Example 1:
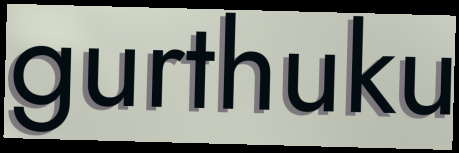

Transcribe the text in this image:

gurthuku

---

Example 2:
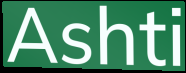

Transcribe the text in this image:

Ashti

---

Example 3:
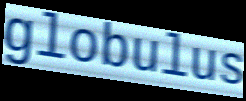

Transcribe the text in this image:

globulus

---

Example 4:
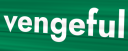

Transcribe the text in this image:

vengeful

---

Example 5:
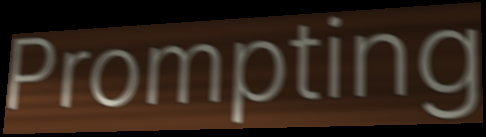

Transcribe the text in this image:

Prompting